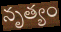
నృత్యం